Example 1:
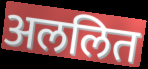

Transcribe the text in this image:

अललित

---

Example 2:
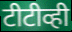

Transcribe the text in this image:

टीटीव्ही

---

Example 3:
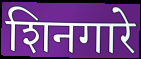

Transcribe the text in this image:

शिनगारे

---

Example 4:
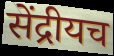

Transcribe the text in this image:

सेंद्रीयच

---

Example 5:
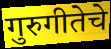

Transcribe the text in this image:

गुरुगीतेचे